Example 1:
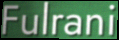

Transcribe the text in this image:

Fulrani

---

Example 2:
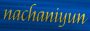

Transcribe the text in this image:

nachaniyun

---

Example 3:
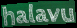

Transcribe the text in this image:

halavu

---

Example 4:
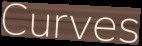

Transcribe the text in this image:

Curves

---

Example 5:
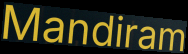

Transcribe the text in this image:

Mandiram